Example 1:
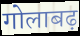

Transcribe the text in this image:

गोलाबढ़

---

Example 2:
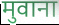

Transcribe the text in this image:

मुवाना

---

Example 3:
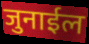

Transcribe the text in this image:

जुनाईल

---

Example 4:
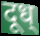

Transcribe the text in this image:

दूध्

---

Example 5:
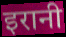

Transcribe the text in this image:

इरानी